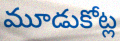
మూడుకోట్ల